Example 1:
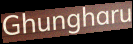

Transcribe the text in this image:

Ghungharu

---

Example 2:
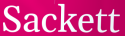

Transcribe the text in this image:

Sackett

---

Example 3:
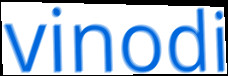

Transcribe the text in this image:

vinodi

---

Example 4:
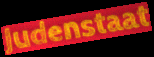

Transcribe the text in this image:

Judenstaat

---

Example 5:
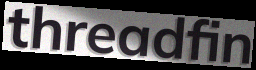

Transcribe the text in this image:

threadfin